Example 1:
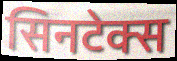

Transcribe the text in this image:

सिनटेक्स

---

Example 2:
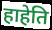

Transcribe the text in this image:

हाहेति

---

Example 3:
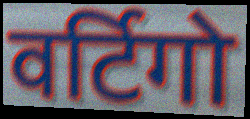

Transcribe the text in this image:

वर्टिगो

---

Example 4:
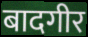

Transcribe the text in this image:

बादगीर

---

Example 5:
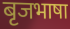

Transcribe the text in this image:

बृजभाषा